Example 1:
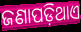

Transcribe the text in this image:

ଜଣାପଡ଼ିଥାଏ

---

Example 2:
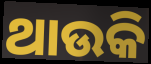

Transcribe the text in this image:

ଥାଉକି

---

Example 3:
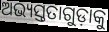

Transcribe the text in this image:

ଅଭ୍ୟସ୍ତତାଗୁଡ଼ାକୁ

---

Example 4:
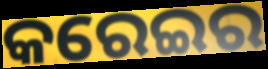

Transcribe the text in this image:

କରେଇର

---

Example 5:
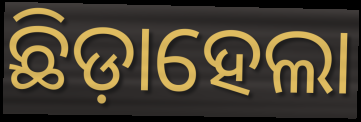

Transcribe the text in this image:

ଛିଡ଼ାହେଲା